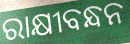
ରାକ୍ଷୀବନ୍ଧନ